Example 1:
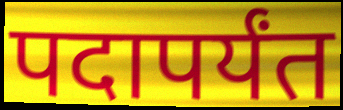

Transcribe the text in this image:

पदापर्यंत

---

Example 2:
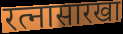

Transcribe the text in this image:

रत्नासारखा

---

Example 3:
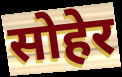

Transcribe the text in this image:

सोहेर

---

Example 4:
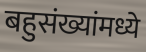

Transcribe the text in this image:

बहुसंख्यांमध्ये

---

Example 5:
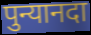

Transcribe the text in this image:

पुन्यानदा